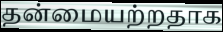
தன்மையற்றதாக